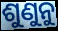
ଶୁଣୁନୁ